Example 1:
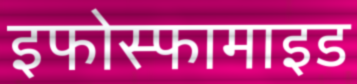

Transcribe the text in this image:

इफोस्फामाइड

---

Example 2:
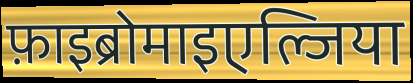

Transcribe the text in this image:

फ़ाइब्रोमाइएल्जिया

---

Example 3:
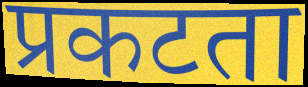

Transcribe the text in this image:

प्रकटता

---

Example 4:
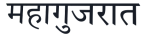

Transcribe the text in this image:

महागुजरात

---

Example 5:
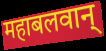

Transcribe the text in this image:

महाबलवान्